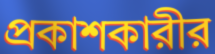
প্রকাশকারীর